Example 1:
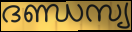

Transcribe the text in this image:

ദണ്ഡസ്യ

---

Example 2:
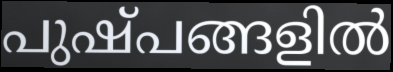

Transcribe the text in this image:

പുഷ്പങ്ങളിൽ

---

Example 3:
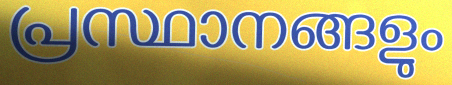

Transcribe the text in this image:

പ്രസ്ഥാനങ്ങളും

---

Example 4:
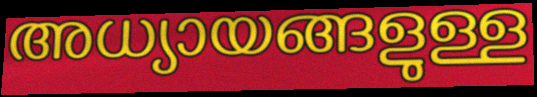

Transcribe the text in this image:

അധ്യായങ്ങളുള്ള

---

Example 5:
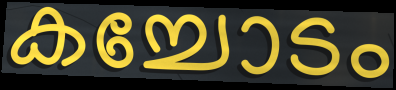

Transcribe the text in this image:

കച്ചോടം